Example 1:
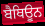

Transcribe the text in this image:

ਬੈਥਿਊਨ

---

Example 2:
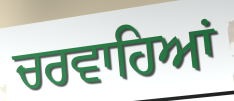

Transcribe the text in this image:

ਚਰਵਾਹਿਆਂ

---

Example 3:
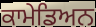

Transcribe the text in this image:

ਕਾਮੇਡਿਅਨ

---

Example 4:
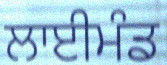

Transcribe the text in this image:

ਲਾਈਮੰਡ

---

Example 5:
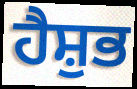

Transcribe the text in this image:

ਹੈਸ਼ੁਭ